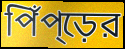
পিঁপ্‌ড়ের